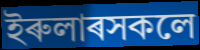
ইৰুলাৰসকলে